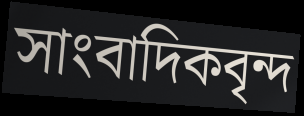
সাংবাদিকবৃন্দ